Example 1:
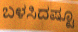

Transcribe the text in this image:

ಬಳಸಿದಷ್ಟೂ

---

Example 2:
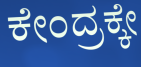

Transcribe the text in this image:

ಕೇಂದ್ರಕ್ಕೇ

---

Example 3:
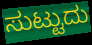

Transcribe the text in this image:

ಸುಟ್ಟುದು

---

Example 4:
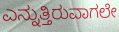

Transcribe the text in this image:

ಎನ್ನುತ್ತಿರುವಾಗಲೇ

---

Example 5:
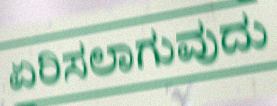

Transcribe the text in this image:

ಏರಿಸಲಾಗುವುದು